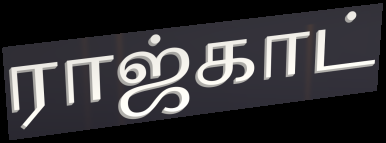
ராஜ்காட்